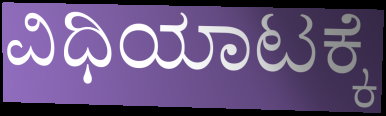
ವಿಧಿಯಾಟಕ್ಕೆ